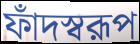
ফাঁদস্বরূপ